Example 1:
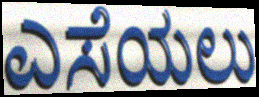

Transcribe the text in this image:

ಎಸೆಯಲು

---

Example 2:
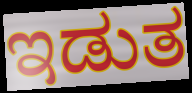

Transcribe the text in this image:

ಇಡುತ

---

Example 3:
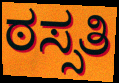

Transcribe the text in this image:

ಠಸ್ಸತಿ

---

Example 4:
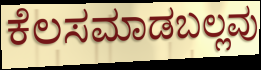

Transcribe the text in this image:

ಕೆಲಸಮಾಡಬಲ್ಲವು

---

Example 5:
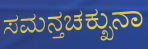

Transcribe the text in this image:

ಸಮನ್ತಚಕ್ಖುನಾ